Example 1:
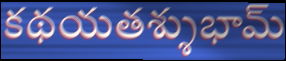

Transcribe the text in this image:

కథయతశ్శుభామ్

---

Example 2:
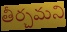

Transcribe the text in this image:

తీర్చమని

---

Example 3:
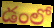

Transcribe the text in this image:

డంలో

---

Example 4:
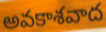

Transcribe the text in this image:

అవకాశవాద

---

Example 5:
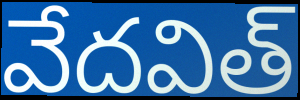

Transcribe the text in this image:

వేదవిత్